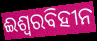
ଈଶ୍ୱରବିହୀନ